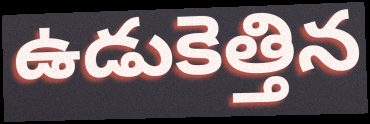
ఉడుకెత్తిన